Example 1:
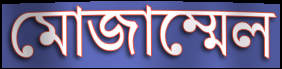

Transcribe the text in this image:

মোজাম্মেল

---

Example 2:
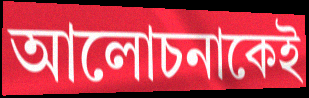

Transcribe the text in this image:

আলোচনাকেই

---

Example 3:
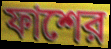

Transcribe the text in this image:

ফাশের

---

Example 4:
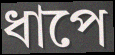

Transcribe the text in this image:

ধাপে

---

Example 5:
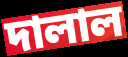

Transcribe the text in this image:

দালাল